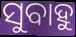
ସୁବାହୁ